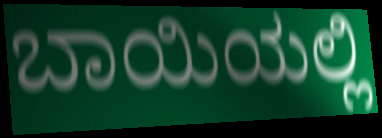
ಬಾಯಿಯಲ್ಲಿ